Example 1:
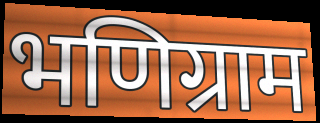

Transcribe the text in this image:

भणिग्राम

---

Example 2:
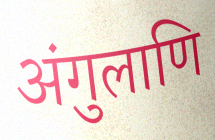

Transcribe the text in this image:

अंगुलाणि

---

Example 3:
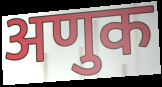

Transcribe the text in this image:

अणुक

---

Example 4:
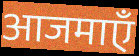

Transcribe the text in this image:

आजमाएँ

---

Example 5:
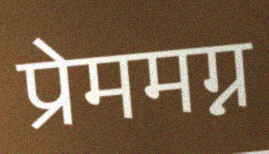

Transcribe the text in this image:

प्रेममग्न